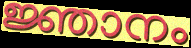
ജ്ഞാനം